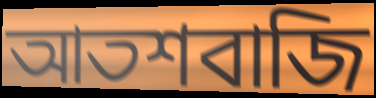
আতশবাজি